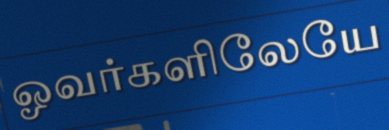
ஓவர்களிலேயே